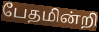
பேதமின்றி